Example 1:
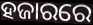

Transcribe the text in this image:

ହଜାରରେ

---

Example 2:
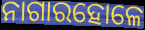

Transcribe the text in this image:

ନାଗାରହୋଳେ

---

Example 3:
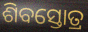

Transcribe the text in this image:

ଶିବସ୍ତୋତ୍ର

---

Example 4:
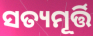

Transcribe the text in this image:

ସତ୍ୟମୂର୍ତ୍ତି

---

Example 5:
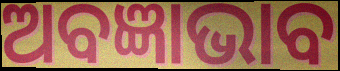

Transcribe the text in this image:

ଅବଜ୍ଞାଭାବ